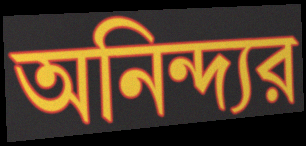
অনিন্দ্যর